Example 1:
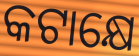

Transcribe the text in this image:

କଟାକ୍ଷେ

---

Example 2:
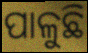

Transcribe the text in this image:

ପାଳୁଛି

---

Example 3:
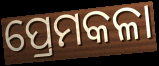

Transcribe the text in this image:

ପ୍ରେମକଳା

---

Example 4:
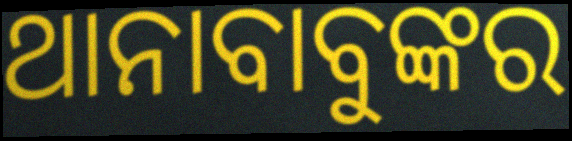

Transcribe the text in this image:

ଥାନାବାବୁଙ୍କର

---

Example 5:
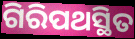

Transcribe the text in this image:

ଗିରିପଥସ୍ଥିତ